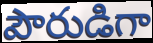
పౌరుడిగా